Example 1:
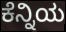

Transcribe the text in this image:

ಕೆನ್ನಿಯ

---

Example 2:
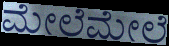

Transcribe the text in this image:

ಮೇಲೆಮೇಲೆ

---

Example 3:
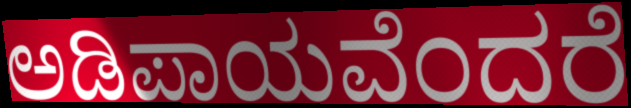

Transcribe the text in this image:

ಅಡಿಪಾಯವೆಂದರೆ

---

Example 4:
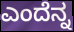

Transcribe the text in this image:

ಎಂದೆನ್ನ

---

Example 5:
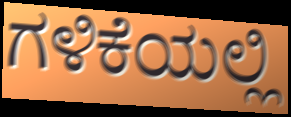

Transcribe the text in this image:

ಗಳಿಕೆಯಲ್ಲಿ